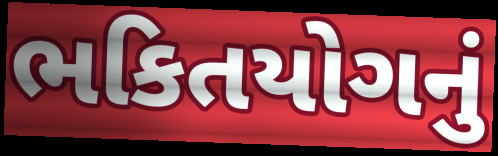
ભકિતયોગનું